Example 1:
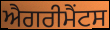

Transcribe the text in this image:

ਐਗਰੀਮੈਂਟਸ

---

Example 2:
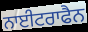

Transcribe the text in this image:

ਨਾਈਟਰਾਫੈਨ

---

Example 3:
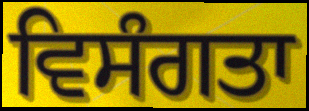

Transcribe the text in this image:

ਵਿਸੰਗਤਾ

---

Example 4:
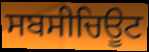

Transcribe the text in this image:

ਸਬਸੀਚਿਊਟ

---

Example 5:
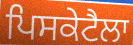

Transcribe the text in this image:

ਪਿਸਕੇਟੈਲਾ